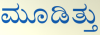
ಮೂಡಿತ್ತು